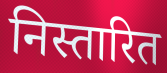
निस्तारित